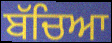
ਬੱਚਿਆ